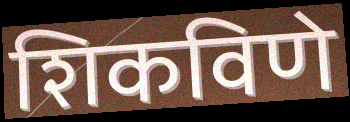
शिकविणे